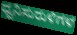
ಧ್ವನಿಸುರುಳಿಗಳ